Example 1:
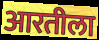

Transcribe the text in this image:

आरतीला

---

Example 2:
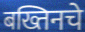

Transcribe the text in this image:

बख्तिनचे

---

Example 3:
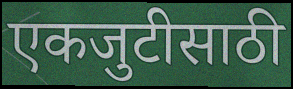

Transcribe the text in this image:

एकजुटीसाठी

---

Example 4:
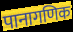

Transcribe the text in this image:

पानागणिक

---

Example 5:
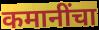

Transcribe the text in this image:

कमानींचा